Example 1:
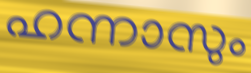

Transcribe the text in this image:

ഹന്നാസും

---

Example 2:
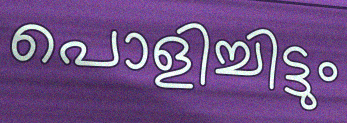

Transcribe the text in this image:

പൊളിച്ചിട്ടും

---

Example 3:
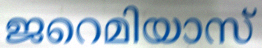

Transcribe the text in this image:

ജറെമിയാസ്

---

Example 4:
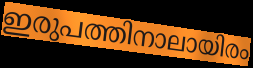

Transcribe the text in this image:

ഇരുപത്തിനാലായിരം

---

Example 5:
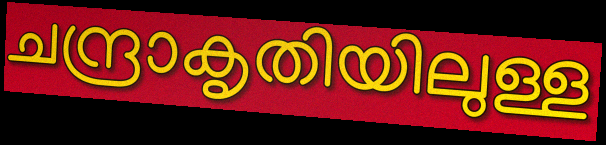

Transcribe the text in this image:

ചന്ദ്രാകൃതിയിലുള്ള